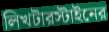
লিখটারস্টাইনের